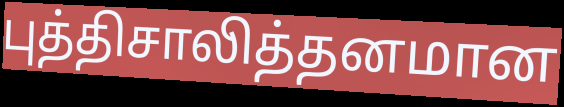
புத்திசாலித்தனமான